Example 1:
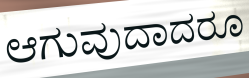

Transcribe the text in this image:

ಆಗುವುದಾದರೂ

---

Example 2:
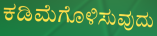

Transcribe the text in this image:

ಕಡಿಮೆಗೊಳಿಸುವುದು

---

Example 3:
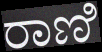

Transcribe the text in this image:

ರಾಣಿ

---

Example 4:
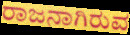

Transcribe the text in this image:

ರಾಜನಾಗಿರುವ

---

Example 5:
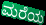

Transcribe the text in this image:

ಮರೆಯ